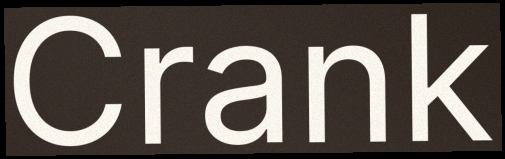
Crank